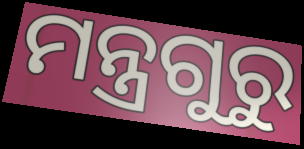
ମନ୍ତ୍ରଗୁରୁ